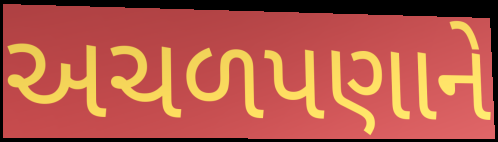
અચળપણાને